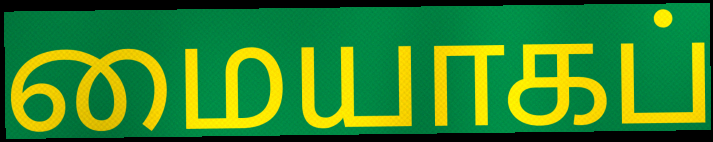
மையாகப்